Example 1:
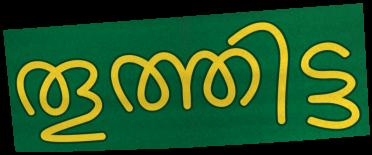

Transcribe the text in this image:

തൂത്തിട്ട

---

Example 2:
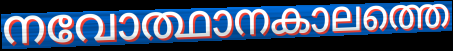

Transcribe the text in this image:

നവോത്ഥാനകാലത്തെ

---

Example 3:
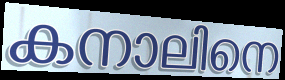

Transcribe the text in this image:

കനാലിനെ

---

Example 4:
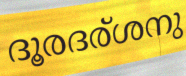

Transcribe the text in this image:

ദൂരദര്ശനു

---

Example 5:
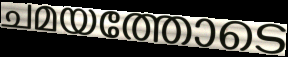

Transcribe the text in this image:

ചമയത്തോടെ